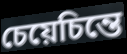
চেয়েচিন্তে